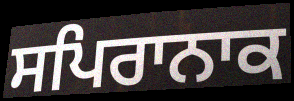
ਸਪਿਰਾਨਾਕ